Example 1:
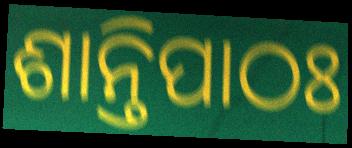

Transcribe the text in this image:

ଶାନ୍ତିପାଠଃ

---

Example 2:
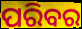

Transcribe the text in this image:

ପରିବର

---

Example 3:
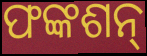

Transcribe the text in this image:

ଫଙ୍କଶନ୍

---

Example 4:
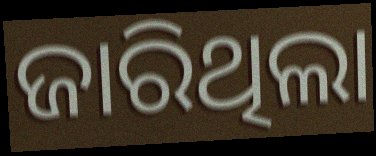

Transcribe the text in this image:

ଜାରିଥିଲା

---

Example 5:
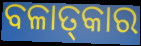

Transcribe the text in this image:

ବଳାତ୍‌କାର